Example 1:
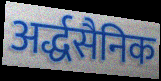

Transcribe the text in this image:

अर्द्धसैनिक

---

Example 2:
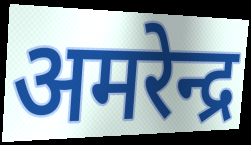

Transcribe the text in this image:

अमरेन्द्र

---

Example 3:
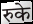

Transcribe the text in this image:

रुके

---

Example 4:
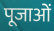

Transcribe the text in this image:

पूजाओं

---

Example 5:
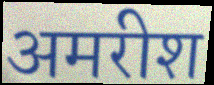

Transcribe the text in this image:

अमरीश